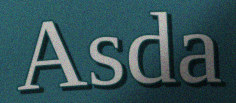
Asda